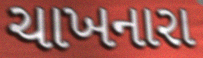
ચાખનારા